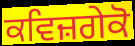
ਕਵਿਜ਼ਗੇਕੋ